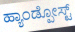
ಹ್ಯಾಂಡ್ಪೋಸ್ಟ್